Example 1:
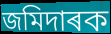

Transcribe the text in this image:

জমিদাৰক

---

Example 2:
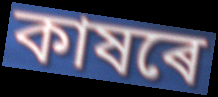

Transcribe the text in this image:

কাষৰে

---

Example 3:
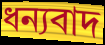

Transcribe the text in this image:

ধন্যবাদ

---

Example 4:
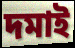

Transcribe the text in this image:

দমাই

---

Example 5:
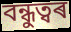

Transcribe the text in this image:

বন্ধুত্বৰ